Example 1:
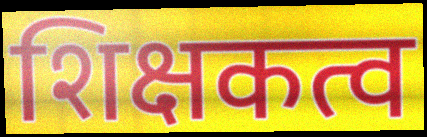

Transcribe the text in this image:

शिक्षकत्व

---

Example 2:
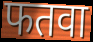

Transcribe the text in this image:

फतवा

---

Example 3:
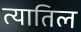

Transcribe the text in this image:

त्यातिल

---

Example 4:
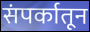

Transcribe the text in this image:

संपर्कातून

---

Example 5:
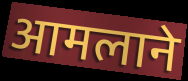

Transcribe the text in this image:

आमलाने